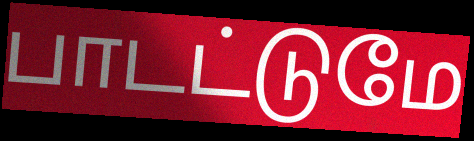
பாடட்டுமே